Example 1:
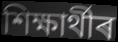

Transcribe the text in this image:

শিক্ষাৰ্থীৰ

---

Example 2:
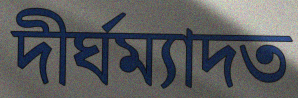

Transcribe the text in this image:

দীৰ্ঘম্যাদত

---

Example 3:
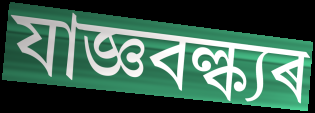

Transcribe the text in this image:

যাজ্ঞবল্ক্যৰ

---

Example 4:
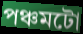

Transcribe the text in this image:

পঞ্চমটো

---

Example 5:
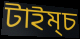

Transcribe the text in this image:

টাইম্‌চ